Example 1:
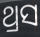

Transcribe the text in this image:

ଥ୍ରସ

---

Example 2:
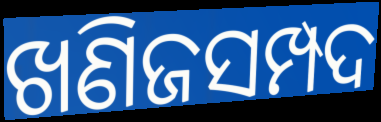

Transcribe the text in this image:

ଖଣିଜସମ୍ପଦ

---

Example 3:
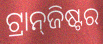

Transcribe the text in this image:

ଟ୍ରାନ୍‍ଜିଷ୍ଟର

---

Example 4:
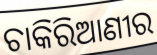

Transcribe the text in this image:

ଚାକିରିଆଣୀର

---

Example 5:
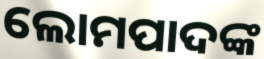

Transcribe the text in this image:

ଲୋମପାଦଙ୍କ